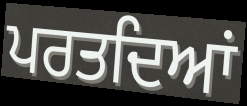
ਪਰਤਦਿਆਂ